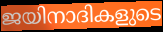
ജയിനാദികളുടെ